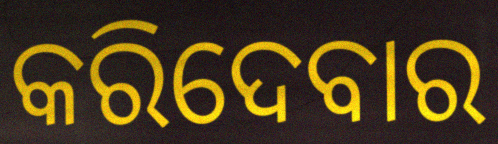
କରିଦେବାର